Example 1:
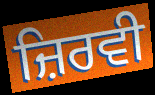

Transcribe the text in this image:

ਜ਼ਿਰਵੀ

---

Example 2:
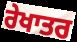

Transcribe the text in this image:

ਰੇਖਾਤਰ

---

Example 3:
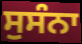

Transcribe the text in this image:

ਸੁਸੰਨਾ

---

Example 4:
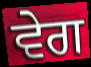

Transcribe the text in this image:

ਵੇਗ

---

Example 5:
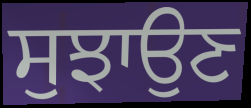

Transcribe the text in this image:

ਸੁਝਾਉਣ